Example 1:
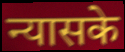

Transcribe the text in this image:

न्यासके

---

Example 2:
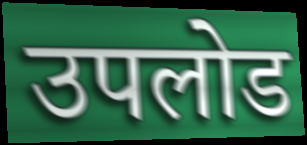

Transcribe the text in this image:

उपलोड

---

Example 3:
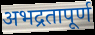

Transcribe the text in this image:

अभद्रतापूर्ण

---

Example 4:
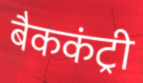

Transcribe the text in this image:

बैककंट्री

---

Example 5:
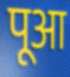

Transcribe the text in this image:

पूआ